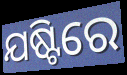
ଯଷ୍ଟିରେ